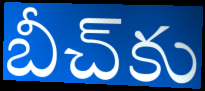
బీచ్‌కు